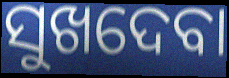
ସୁଖଦେବା